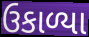
ઉકાળ્યા